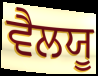
ਵੈਲਯੂ